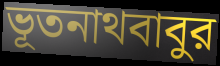
ভূতনাথবাবুর